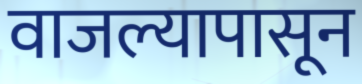
वाजल्यापासून